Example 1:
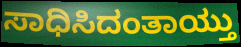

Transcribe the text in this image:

ಸಾಧಿಸಿದಂತಾಯ್ತು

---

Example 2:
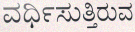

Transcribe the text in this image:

ವರ್ಧಿಸುತ್ತಿರುವ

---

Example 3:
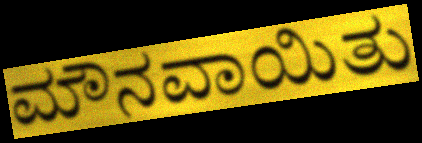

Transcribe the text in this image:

ಮೌನವಾಯಿತು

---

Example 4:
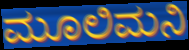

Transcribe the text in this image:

ಮೂಲಿಮನಿ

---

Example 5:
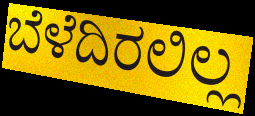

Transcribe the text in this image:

ಬೆಳೆದಿರಲಿಲ್ಲ